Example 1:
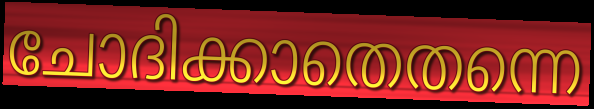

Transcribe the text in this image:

ചോദിക്കാതെതന്നെ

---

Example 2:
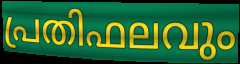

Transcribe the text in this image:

പ്രതിഫലവും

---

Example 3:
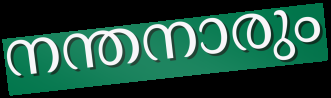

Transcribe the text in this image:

നന്തനാരും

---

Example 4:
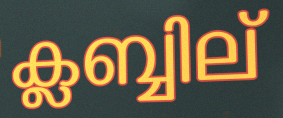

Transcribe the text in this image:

ക്ലബ്ബില്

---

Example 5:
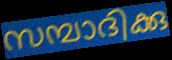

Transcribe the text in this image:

സമ്പാദിക്കു